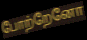
போற்றேனோ